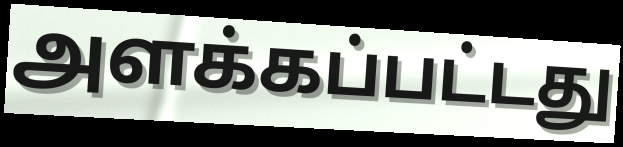
அளக்கப்பட்டது